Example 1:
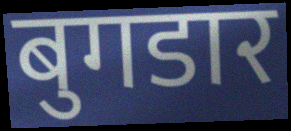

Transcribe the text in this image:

बुगडार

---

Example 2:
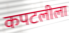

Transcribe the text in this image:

कपटलीला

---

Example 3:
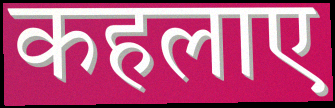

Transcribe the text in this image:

कहलाए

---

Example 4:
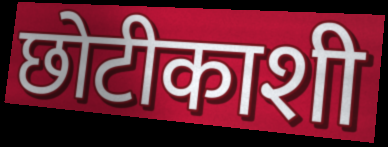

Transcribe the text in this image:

छोटीकाशी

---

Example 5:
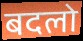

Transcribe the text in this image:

बदलो